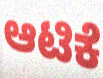
ಆಟಿಕೆ